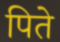
पिते